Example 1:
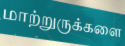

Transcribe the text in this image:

மாற்றுருக்களை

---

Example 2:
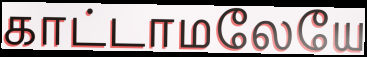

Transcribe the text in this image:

காட்டாமலேயே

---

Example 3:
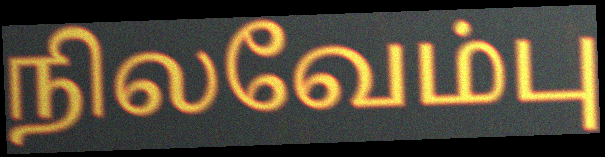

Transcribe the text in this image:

நிலவேம்பு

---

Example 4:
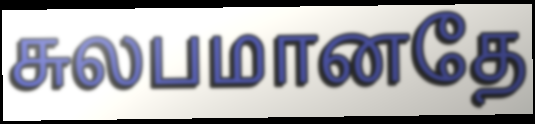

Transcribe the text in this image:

சுலபமானதே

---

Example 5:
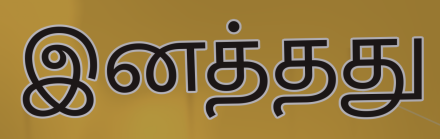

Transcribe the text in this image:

இனத்தது